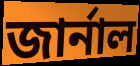
জার্নাল